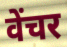
वेंचर